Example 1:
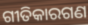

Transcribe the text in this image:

ଗୀତିକାରଗଣ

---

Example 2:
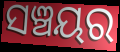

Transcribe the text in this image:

ସଞ୍ଚୟର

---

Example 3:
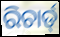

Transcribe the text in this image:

ରିଚାର୍ଡ୍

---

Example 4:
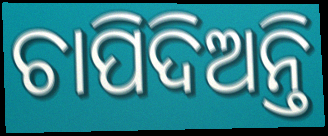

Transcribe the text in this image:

ଚାପିଦିଅନ୍ତି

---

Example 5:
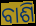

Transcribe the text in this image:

ବାଶି